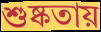
শুষ্কতায়